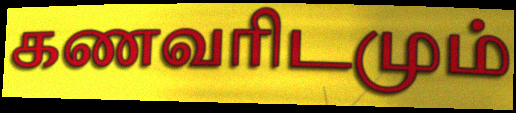
கணவரிடமும்